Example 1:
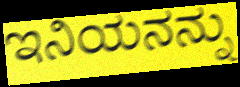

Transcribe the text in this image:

ಇನಿಯನನ್ನು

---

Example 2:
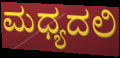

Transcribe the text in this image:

ಮಧ್ಯದಲಿ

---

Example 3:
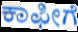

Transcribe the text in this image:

ಕಾಫೀಗೆ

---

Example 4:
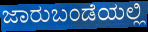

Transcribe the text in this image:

ಜಾರುಬಂಡೆಯಲ್ಲಿ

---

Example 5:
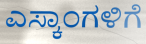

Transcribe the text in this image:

ಎಸ್ಕಾಂಗಳಿಗೆ